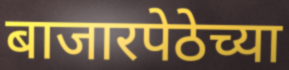
बाजारपेठेच्या